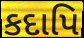
કદાપિ